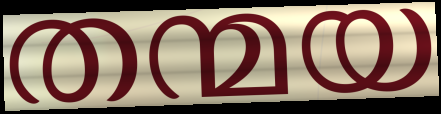
തന്മയ